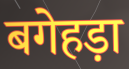
बगेहड़ा